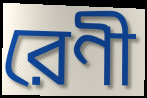
রেণী